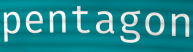
pentagon